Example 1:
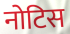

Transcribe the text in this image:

नोटिस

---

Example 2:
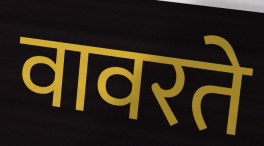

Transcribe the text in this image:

वावरते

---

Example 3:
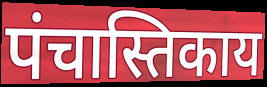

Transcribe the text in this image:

पंचास्तिकाय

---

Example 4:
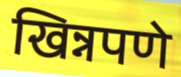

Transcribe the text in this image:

खिन्नपणे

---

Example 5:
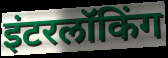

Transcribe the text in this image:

इंटरलॉकिंग